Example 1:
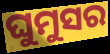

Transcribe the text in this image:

ଘୁମୁସର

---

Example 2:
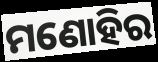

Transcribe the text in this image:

ମଣୋହିର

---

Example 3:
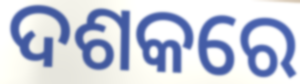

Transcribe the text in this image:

ଦଶକରେ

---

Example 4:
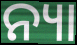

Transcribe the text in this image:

ନ୍ୟା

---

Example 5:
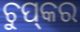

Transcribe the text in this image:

ଚୁପ୍‌କର